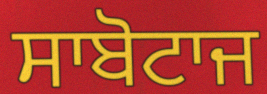
ਸਾਬੋਟਾਜ